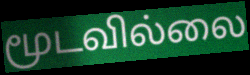
மூடவில்லை